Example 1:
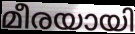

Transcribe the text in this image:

മീരയായി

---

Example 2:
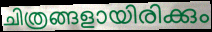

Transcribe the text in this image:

ചിത്രങ്ങളായിരിക്കും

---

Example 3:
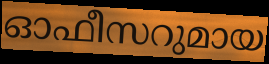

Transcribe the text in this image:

ഓഫീസറുമായ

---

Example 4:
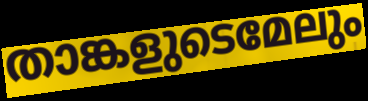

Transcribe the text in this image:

താങ്കളുടെമേലും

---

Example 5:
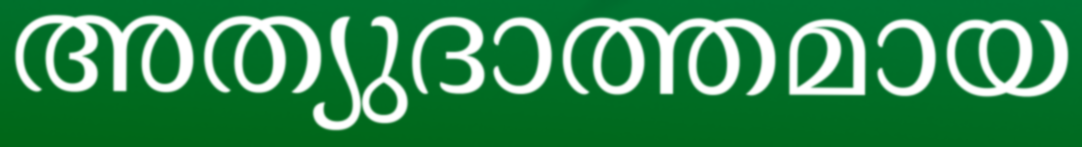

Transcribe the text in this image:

അത്യുദാത്തമായ